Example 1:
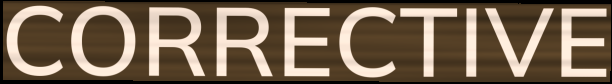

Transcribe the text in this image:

CORRECTIVE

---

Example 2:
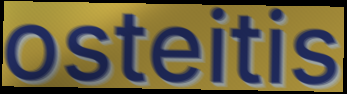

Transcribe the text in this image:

osteitis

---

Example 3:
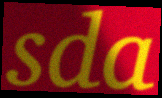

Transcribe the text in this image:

sda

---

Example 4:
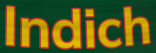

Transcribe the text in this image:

Indich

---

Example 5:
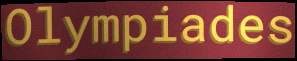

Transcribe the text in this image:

Olympiades